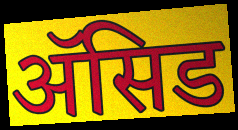
ॲसिड